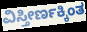
ವಿಸ್ತೀರ್ಣಕ್ಕಿಂತ